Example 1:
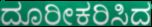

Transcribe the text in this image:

ದೂರೀಕರಿಸಿದ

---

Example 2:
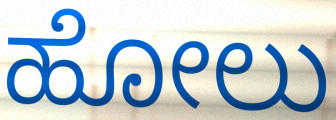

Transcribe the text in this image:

ಹೋಲು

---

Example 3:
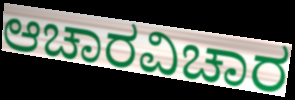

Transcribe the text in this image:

ಆಚಾರವಿಚಾರ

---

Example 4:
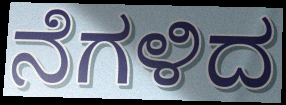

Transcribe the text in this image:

ನೆಗಳಿದ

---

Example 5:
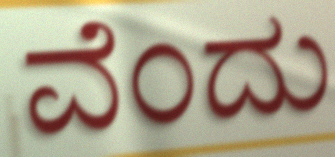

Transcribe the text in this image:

ವೆಂದು